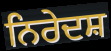
ਨਿਰੇਦਸ਼